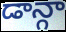
డాన్గా